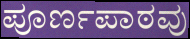
ಪೂರ್ಣಪಾಠವು